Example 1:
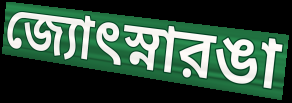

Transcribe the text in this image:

জ্যোৎস্নারঙা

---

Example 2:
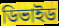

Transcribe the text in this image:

ডিভাইড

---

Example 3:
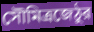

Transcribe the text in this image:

সৌমিত্রজেঠুর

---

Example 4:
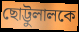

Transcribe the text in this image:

ছোট্টুলালকে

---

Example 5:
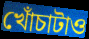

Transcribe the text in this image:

খোঁচাটাও